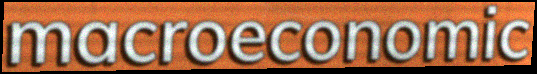
macroeconomic